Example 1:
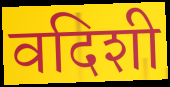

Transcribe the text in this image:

वदिशी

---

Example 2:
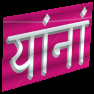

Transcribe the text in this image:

यांनां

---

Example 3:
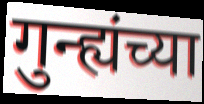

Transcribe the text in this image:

गुन्ह्यंच्या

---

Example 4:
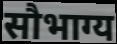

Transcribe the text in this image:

सौभाग्य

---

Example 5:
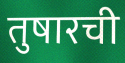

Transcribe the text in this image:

तुषारची